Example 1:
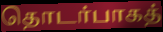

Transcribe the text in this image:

தொடர்பாகத்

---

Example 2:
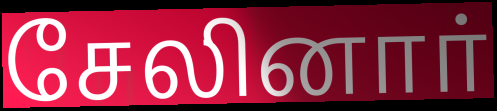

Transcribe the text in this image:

சேலினார்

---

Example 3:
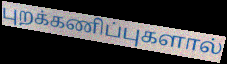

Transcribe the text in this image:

புறக்கணிப்புகளால்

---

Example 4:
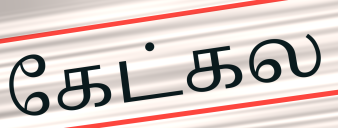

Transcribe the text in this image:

கேட்கல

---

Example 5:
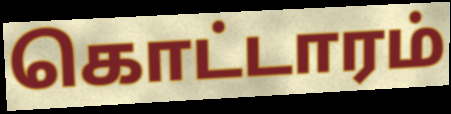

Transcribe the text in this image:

கொட்டாரம்